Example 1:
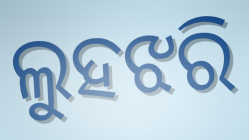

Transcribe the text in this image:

ଲୁହଝରି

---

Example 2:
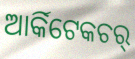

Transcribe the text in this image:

ଆର୍କିଟେକଚର୍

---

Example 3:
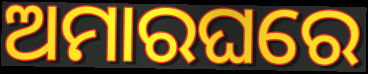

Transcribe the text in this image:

ଅମାରଘରେ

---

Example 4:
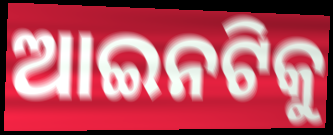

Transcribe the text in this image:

ଆଇନଟିକୁ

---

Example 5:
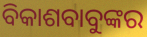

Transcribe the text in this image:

ବିକାଶବାବୁଙ୍କର